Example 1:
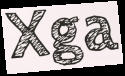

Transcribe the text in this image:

Xga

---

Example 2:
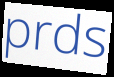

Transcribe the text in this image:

prds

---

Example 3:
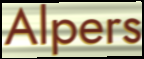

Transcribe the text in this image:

Alpers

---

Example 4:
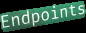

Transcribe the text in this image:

Endpoints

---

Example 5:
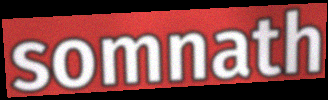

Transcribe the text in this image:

somnath